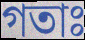
গতাঃ